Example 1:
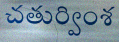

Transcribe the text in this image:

చతుర్వింశ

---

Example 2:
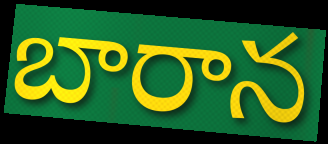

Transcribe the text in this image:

బారాన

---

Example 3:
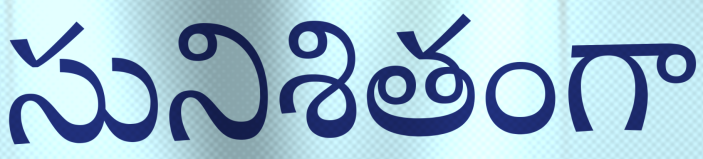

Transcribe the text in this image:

సునిశితంగా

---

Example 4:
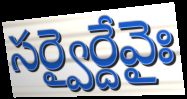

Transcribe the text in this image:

సర్వైర్దేవైః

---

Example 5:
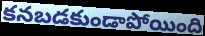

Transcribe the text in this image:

కనబడకుండాపోయింది